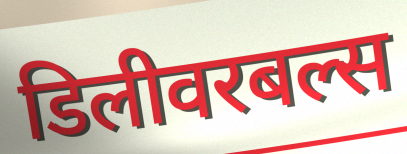
डिलीवरबल्स